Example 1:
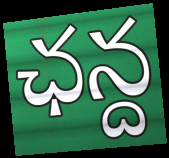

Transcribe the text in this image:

ఛన్ద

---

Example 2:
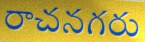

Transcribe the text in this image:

రాచనగరు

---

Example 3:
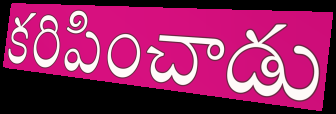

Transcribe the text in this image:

కరిపించాడు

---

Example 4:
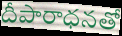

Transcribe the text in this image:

దీపారాధనతో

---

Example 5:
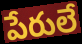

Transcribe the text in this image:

పేరులే